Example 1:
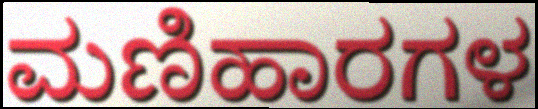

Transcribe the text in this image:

ಮಣಿಹಾರಗಳ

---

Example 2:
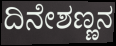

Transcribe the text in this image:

ದಿನೇಶಣ್ಣನ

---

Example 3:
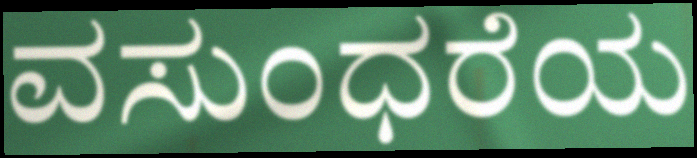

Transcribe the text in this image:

ವಸುಂಧರೆಯ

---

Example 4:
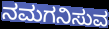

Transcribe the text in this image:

ನಮಗನಿಸುವ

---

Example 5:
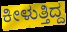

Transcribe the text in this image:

ಕೀಳುತ್ತಿದ್ದ